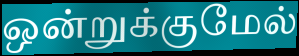
ஒன்றுக்குமேல்